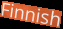
Finnish